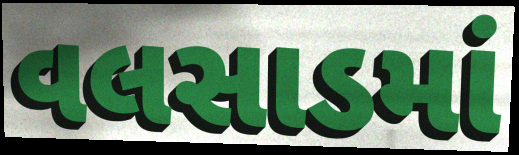
વલસાડમાં